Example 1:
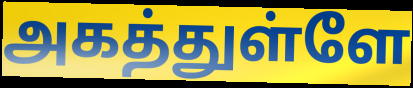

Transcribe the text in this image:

அகத்துள்ளே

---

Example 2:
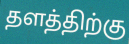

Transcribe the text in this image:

தளத்திற்கு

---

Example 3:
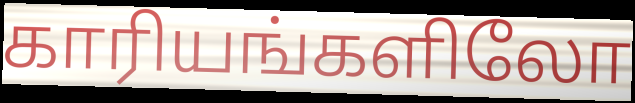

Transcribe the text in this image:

காரியங்களிலோ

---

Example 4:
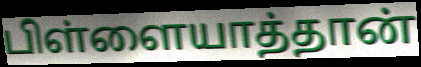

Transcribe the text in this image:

பிள்ளையாத்தான்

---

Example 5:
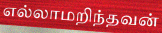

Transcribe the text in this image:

எல்லாமறிந்தவன்